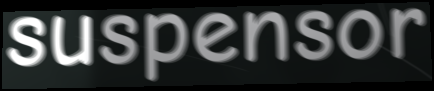
suspensor